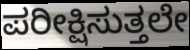
ಪರೀಕ್ಷಿಸುತ್ತಲೇ